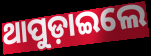
ଥାପୁଡ଼ାଇଲେ